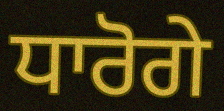
ਧਾਰੋਗੇ